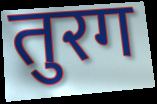
तुरग